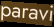
paravi